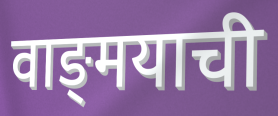
वाङ्मयाची